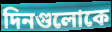
দিনগুলোকে